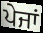
ਪੇਜਾਂ